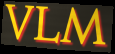
VLM